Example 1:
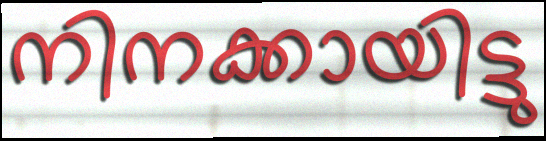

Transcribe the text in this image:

നിനക്കായിട്ടു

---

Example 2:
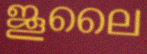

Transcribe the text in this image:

ജൂലൈ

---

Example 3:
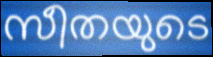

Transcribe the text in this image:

സീതയുടെ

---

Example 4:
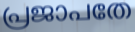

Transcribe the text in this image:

പ്രജാപതേ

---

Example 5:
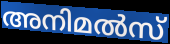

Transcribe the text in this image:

അനിമൽസ്